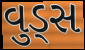
વુડ્સ